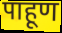
पाहूण